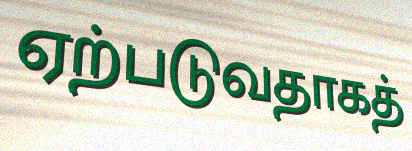
ஏற்படுவதாகத்